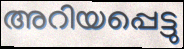
അറിയപ്പെട്ടു